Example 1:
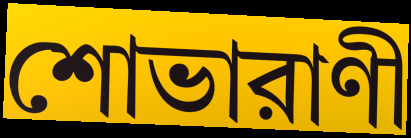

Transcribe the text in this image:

শোভারাণী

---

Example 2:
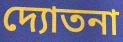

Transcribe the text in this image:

দ্যোতনা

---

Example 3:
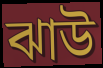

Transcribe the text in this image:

ঝাউ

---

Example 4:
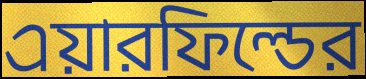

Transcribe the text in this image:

এয়ারফিল্ডের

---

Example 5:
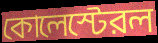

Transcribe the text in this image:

কোলেস্টেরল